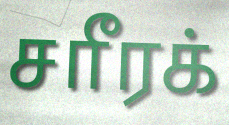
சரீரக்